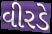
વીરડે